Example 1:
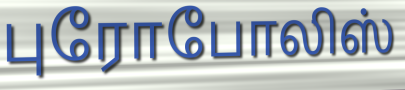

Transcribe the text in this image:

புரோபோலிஸ்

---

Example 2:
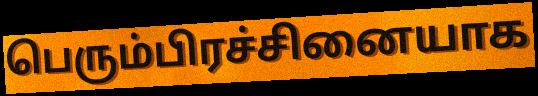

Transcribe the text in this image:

பெரும்பிரச்சினையாக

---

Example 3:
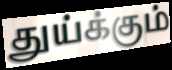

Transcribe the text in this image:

துய்க்கும்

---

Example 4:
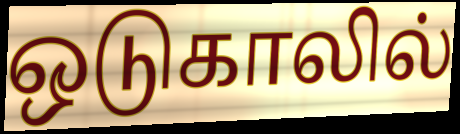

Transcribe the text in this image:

ஒடுகாலில்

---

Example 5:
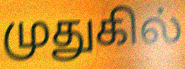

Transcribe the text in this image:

முதுகில்